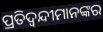
ପ୍ରତିଦ୍ୱନ୍ଦୀମାନଙ୍କର